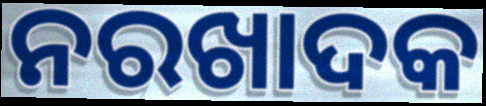
ନରଖାଦକ